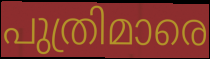
പുത്രിമാരെ